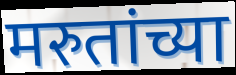
मरुतांच्या